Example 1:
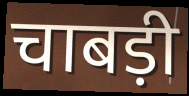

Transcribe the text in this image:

चाबड़ी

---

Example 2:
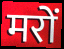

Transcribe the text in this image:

मरों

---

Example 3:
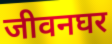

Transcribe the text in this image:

जीवनघर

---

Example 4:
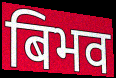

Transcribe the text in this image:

बिभव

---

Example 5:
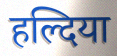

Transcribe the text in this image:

हल्दिया